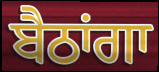
ਬੈਠਾਂਗਾ